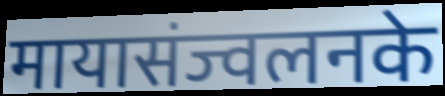
मायासंज्वलनके